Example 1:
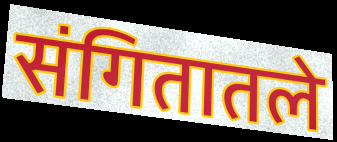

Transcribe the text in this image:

संगितातले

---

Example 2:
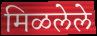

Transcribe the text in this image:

मिळलेले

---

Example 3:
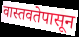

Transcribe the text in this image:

वास्तवतेपासून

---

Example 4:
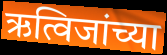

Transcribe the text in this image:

ऋत्विजांच्या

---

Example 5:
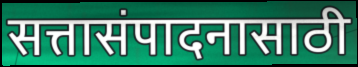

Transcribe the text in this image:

सत्तासंपादनासाठी